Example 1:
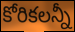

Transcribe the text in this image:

కోరికలన్నీ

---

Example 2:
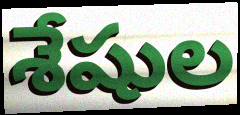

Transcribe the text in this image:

శేషుల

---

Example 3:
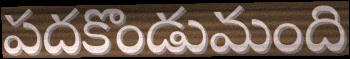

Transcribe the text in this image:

పదకొండుమంది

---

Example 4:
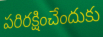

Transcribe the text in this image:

పరిరక్షించేందుకు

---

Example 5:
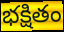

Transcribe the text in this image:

భక్షితం